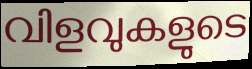
വിളവുകളുടെ